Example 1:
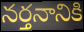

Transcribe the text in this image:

నర్తనానికి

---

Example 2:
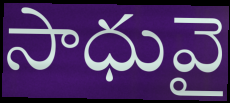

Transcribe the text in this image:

సాధువై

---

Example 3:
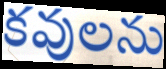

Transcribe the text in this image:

కవులను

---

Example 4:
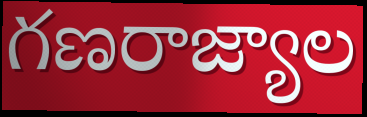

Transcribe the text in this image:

గణరాజ్యాల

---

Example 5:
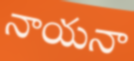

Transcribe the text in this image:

నాయనా